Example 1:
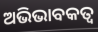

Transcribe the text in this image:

ଅଭିଭାବକତ୍ବ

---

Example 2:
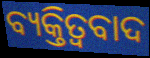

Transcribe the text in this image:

ବ୍ଯକ୍ତିତ୍ଵବାଦ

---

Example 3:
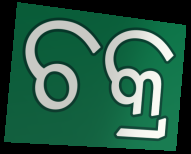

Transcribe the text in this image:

ଚକ୍ର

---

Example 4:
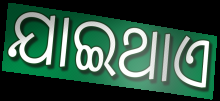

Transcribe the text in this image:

ଯାଇଥାଏ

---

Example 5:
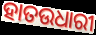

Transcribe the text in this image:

ହାତଉଧାରୀ